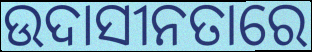
ଉଦାସୀନତାରେ